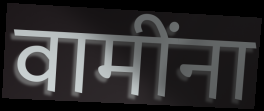
वामींना